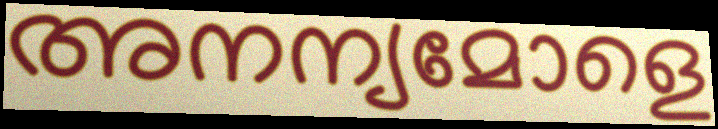
അനന്യമോളെ